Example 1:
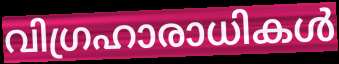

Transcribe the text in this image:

വിഗ്രഹാരാധികൾ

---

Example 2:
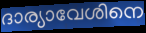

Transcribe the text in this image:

ദാര്യാവേശിനെ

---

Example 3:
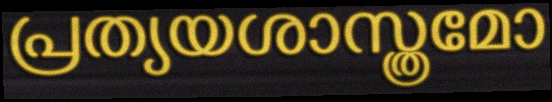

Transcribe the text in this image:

പ്രത്യയശാസ്ത്രമോ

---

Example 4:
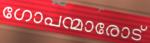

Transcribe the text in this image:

ഗോപന്മാരോട്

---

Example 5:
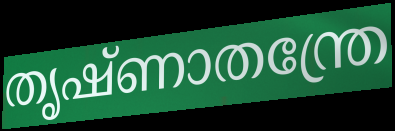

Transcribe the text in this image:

തൃഷ്ണാതന്ത്രേ